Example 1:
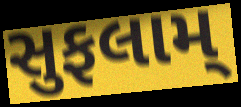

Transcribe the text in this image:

સુફલામ્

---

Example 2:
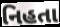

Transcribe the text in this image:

નિહતા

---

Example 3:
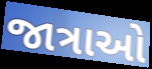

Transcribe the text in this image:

જાત્રાઓ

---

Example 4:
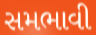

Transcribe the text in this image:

સમભાવી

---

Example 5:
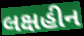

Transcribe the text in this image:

લક્ષહીન